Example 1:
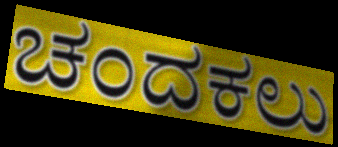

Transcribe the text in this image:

ಚಂದಕಲು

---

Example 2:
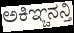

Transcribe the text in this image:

ಅಕಿಞ್ಚನನ್ತಿ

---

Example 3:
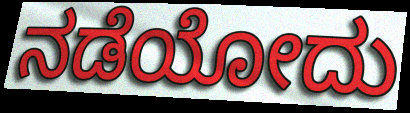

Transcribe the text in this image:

ನಡೆಯೋದು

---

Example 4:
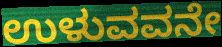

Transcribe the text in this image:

ಉಳುವವನೇ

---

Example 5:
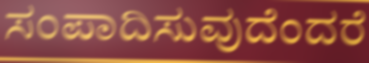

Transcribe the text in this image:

ಸಂಪಾದಿಸುವುದೆಂದರೆ